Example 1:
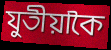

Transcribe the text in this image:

যুতীয়াকৈ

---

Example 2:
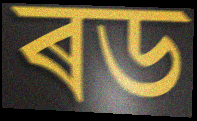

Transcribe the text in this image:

ৰড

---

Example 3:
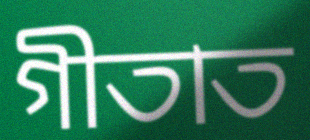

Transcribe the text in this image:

গীতাত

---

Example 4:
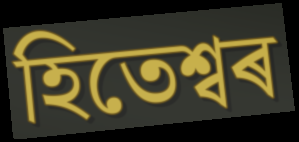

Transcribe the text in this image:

হিতেশ্বৰ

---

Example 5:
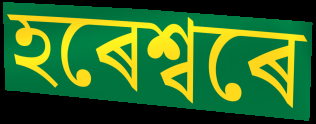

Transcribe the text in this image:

হৰেশ্বৰে